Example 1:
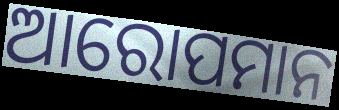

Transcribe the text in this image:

ଆରୋପମାନ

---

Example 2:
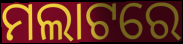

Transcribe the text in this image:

ମଲାଟରେ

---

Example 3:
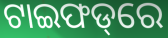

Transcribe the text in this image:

ଟାଇଫଡ୍‌ରେ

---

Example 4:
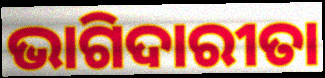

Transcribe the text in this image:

ଭାଗିଦାରୀତା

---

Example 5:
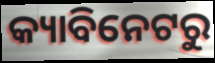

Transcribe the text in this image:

କ୍ୟାବିନେଟରୁ